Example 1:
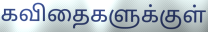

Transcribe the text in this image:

கவிதைகளுக்குள்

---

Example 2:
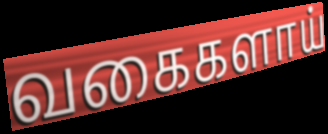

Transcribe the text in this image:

வகைகளாய்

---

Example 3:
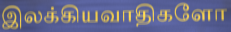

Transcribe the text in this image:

இலக்கியவாதிகளோ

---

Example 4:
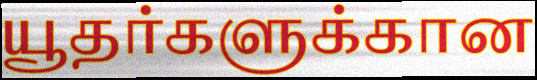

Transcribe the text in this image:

யூதர்களுக்கான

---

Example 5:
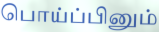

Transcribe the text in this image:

பொய்ப்பினும்